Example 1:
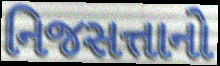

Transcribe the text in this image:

નિજસત્તાનો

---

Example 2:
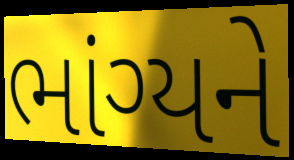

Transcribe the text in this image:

ભાંગ્યને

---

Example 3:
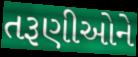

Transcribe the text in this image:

તરૂણીઓને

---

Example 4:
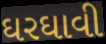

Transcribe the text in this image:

ઘરઘાવી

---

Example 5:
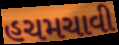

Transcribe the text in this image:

હચમચાવી